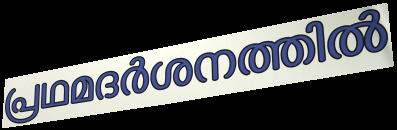
പ്രഥമദർശനത്തിൽ